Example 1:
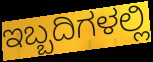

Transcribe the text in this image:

ಇಬ್ಬದಿಗಳಲ್ಲಿ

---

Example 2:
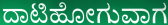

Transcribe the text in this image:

ದಾಟಿಹೋಗುವಾಗ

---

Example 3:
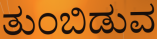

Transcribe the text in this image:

ತುಂಬಿಡುವ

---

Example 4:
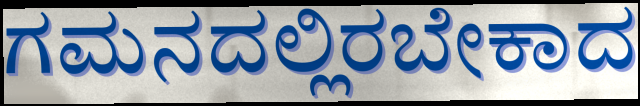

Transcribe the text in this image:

ಗಮನದಲ್ಲಿರಬೇಕಾದ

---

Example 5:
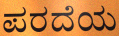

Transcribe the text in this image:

ಪರದೆಯ